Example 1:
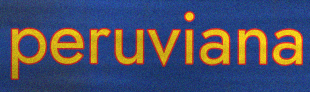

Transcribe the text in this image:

peruviana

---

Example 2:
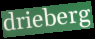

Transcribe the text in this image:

drieberg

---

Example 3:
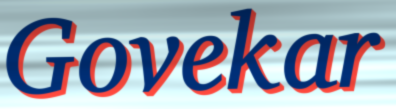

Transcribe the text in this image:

Govekar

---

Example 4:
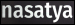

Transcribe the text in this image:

nasatya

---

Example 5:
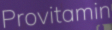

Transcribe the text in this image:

Provitamin